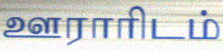
ஊராரிடம்